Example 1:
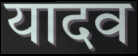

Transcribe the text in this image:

यादव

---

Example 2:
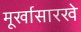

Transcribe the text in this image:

मूर्खासारखे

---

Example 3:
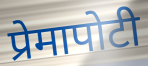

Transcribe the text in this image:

प्रेमापोटी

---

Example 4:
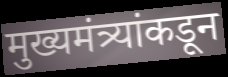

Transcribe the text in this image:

मुख्यमंत्र्यांकडून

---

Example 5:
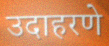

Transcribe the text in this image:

उदाहरणे